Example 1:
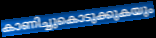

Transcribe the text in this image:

കാണിച്ചുകൊടുക്കുകയും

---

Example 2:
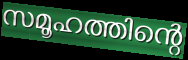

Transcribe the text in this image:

സമൂഹത്തിന്റെ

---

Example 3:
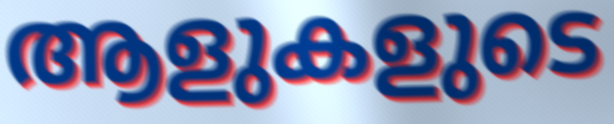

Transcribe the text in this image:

ആളുകളുടെ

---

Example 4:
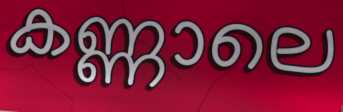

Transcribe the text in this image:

കണ്ണാലെ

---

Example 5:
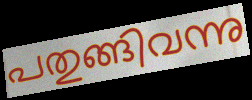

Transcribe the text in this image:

പതുങ്ങിവന്നു